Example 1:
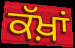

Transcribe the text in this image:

ਕੱਖ਼ਾਂ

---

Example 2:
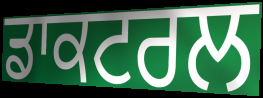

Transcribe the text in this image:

ਡਾਕਟਰਲ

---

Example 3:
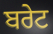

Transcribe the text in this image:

ਬਰੇਟ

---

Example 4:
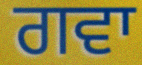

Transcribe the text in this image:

ਗਵਾ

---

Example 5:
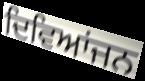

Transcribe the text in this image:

ਦਿਵਿਆਂਜਨ